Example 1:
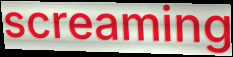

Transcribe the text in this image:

screaming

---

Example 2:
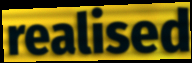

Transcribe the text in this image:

realised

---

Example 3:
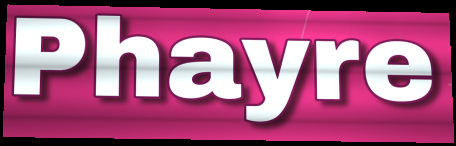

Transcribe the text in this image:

Phayre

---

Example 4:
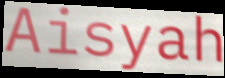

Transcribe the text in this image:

Aisyah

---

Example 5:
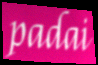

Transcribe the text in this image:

padai